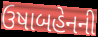
ઉષાબહેનની